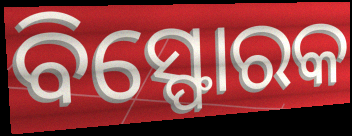
ବିସ୍ଫୋରକ